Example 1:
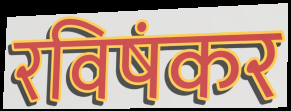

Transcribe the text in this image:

रविषंकर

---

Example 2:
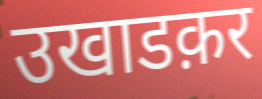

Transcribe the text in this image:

उखाडक़र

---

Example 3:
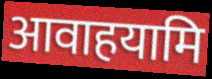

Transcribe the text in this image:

आवाहयामि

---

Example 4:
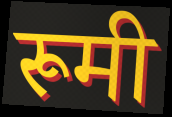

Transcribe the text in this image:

रूमी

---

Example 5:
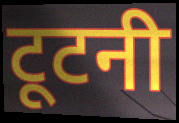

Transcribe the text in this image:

टूटनी